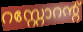
റസ്റ്റോറന്റ്